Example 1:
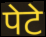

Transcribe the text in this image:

पेटे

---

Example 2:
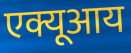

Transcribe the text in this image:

एक्यूआय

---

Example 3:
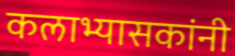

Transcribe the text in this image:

कलाभ्यासकांनी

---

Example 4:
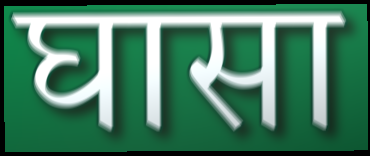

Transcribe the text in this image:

घासा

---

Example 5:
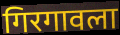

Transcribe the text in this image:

गिरगावला